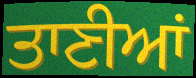
ਤਾਣੀਆਂ